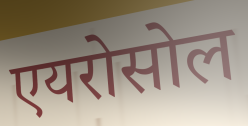
एयरोसोल